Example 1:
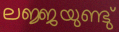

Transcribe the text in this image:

ലജ്ജയുണ്ടു്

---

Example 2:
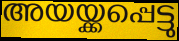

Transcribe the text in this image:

അയയ്ക്കപ്പെട്ടു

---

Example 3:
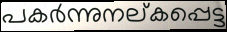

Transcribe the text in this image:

പകർന്നുനല്കപ്പെട്ട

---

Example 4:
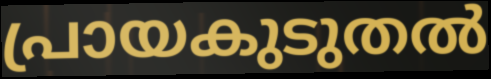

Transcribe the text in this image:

പ്രായകുടുതൽ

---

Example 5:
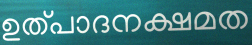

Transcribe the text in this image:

ഉത്പാദനക്ഷമത